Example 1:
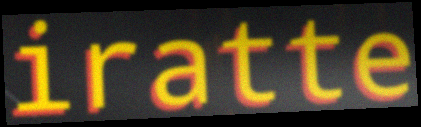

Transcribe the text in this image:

iratte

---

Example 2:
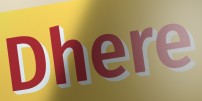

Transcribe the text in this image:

Dhere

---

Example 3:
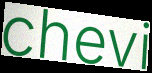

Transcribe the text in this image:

chevi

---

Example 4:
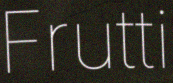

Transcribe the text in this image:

Frutti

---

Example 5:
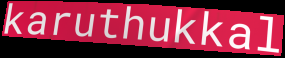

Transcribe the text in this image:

karuthukkal